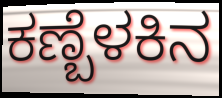
ಕಣ್ಬೆಳಕಿನ